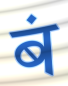
बं